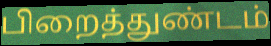
பிறைத்துண்டம்